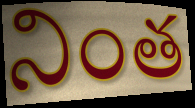
నింత